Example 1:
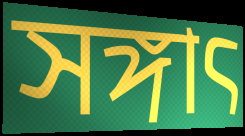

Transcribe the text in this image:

সঙ্গাৎ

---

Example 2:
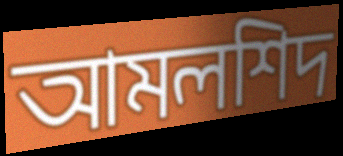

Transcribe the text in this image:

আমলশিদ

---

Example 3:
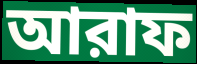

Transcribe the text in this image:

আরাফ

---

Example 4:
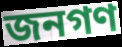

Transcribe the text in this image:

জনগণ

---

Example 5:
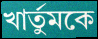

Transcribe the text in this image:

খার্তুমকে